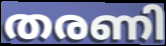
തരണി